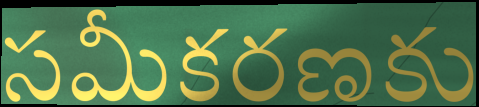
సమీకరణకు